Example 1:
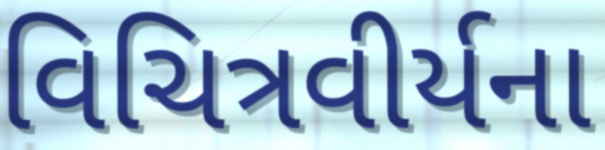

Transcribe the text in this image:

વિચિત્રવીર્યના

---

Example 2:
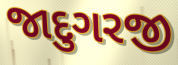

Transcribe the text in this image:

જાદુગરજી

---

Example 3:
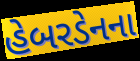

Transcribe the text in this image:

હેબરડેનના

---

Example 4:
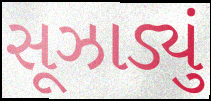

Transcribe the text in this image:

સૂઝાડ્યું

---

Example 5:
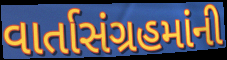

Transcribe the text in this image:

વાર્તાસંગ્રહમાંની